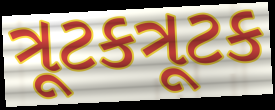
ત્રૂટકત્રૂટક